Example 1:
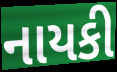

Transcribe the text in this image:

નાયકી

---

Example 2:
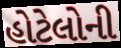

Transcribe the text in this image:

હોટેલોની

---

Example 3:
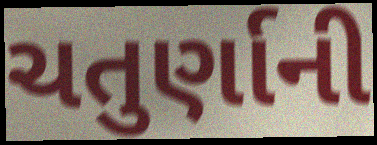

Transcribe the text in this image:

ચતુર્ણાની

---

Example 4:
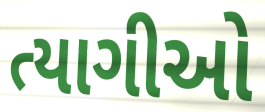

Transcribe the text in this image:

ત્યાગીઓ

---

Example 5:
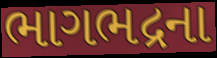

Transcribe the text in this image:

ભાગભદ્રના